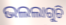
ଭଲଲାଗୁଚି